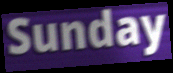
Sunday